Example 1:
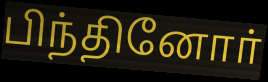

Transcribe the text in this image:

பிந்தினோர்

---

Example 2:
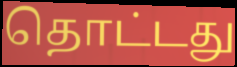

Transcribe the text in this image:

தொட்டது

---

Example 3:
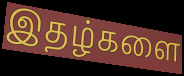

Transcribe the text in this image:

இதழ்களை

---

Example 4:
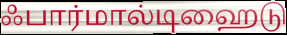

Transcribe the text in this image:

ஃபார்மால்டிஹைடு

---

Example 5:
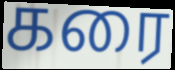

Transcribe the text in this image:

கரை